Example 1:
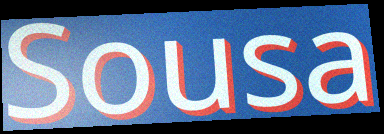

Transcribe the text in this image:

Sousa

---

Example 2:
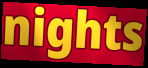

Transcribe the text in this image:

nights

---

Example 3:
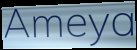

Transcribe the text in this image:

Ameya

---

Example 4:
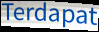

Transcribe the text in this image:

Terdapat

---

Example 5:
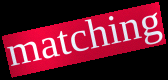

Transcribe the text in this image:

matching